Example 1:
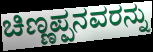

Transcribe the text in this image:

ಚಿಣ್ಣಪ್ಪನವರನ್ನು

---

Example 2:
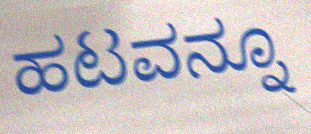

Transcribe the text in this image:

ಹಟವನ್ನೂ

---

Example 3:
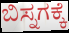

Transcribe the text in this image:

ಬಿಸ್ನಗಕ್ಕೆ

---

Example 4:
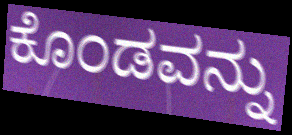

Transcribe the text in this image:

ಕೊಂಡವನ್ನು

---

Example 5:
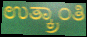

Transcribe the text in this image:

ಉತ್ಕ್ರಾಂತಿ